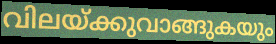
വിലയ്ക്കുവാങ്ങുകയും